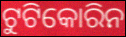
ଟୁଟିକୋରିନ